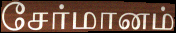
சேர்மானம்